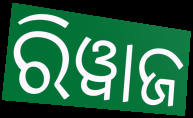
ରିୱାଜ